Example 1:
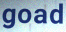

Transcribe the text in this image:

goad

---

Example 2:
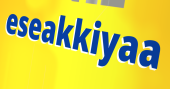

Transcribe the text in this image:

eseakkiyaa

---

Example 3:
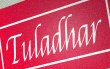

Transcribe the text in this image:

Tuladhar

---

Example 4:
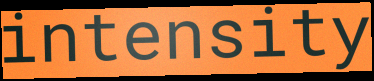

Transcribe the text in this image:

intensity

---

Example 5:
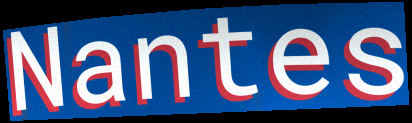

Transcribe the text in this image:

Nantes